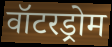
वॉटरड्रोम